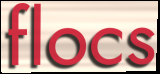
flocs